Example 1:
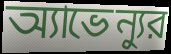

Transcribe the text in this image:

অ্যাভেন্যুর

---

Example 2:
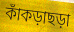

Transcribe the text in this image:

কাঁকড়াছড়া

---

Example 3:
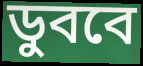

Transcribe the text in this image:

ডুববে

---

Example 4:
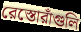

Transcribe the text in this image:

রেস্তোরাঁগুলি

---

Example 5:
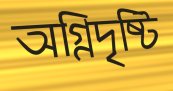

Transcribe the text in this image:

অগ্নিদৃষ্টি